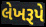
લેખરૂપે